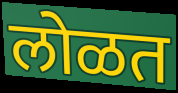
लोळत